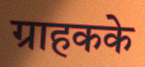
ग्राहकके